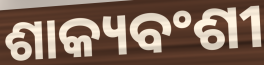
ଶାକ୍ୟବଂଶୀ